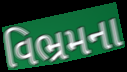
વિભ્રમના